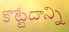
కొట్టేదాన్ని